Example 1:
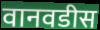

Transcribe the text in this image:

वानवडीस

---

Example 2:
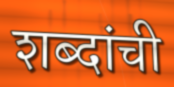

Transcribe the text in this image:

शब्दांची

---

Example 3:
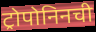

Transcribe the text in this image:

ट्रोपोनिनची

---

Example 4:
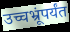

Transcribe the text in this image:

उच्चभ्रूंपर्यंत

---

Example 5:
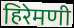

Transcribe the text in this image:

हिरेमणी